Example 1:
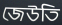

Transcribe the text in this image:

জেউতি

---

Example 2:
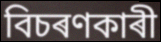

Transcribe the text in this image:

বিচৰণকাৰী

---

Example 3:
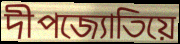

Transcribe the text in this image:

দীপজ্যোতিয়ে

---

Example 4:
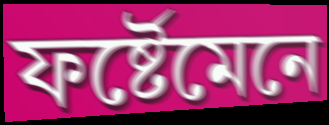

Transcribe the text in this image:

ফৰ্ষ্টেমেনে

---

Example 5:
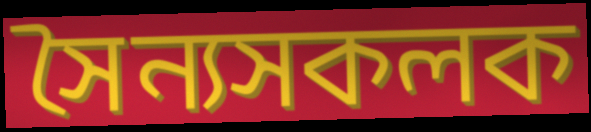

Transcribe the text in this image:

সৈন্যসকলক